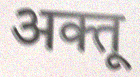
अक्तू